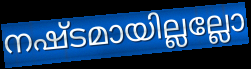
നഷ്ടമായില്ലല്ലോ